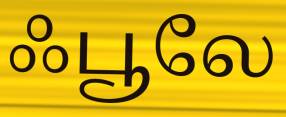
ஃபூலே